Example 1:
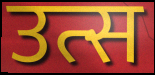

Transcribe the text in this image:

उत्स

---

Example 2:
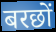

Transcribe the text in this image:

बरछों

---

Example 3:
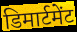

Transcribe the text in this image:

डिमार्टमेंट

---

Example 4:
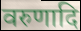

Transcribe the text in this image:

वरुणादि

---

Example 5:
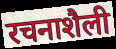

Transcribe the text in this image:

रचनाशैली